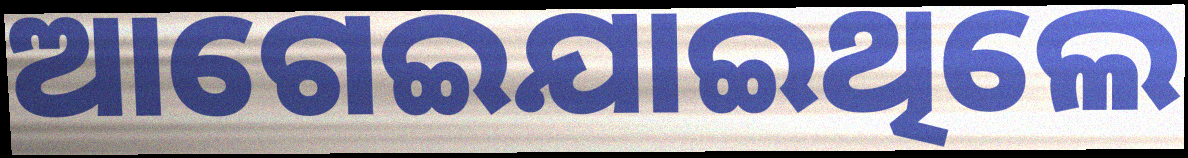
ଆଗେଇଯାଇଥିଲେ